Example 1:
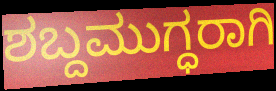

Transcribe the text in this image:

ಶಬ್ದಮುಗ್ಧರಾಗಿ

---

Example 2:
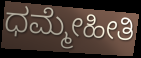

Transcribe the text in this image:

ಧಮ್ಮೇಹೀತಿ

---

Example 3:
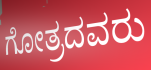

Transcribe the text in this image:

ಗೋತ್ರದವರು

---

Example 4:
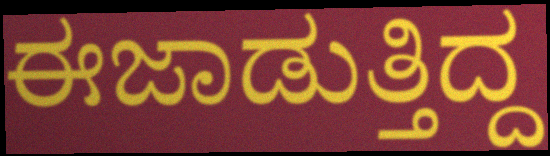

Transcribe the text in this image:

ಈಜಾಡುತ್ತಿದ್ದ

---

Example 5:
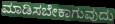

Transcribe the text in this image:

ಮಾಡಿಸಬೇಕಾಗುವುದು